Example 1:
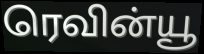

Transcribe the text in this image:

ரெவின்யூ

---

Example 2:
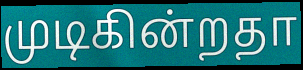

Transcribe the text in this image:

முடிகின்றதா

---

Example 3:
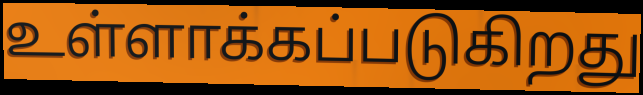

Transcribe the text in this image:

உள்ளாக்கப்படுகிறது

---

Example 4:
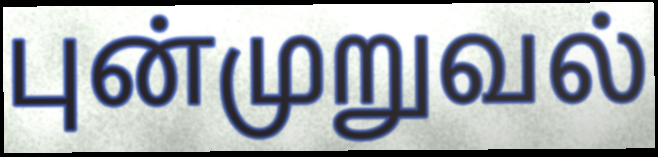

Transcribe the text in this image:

புன்முறுவல்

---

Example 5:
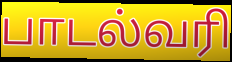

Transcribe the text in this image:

பாடல்வரி